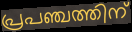
പ്രപഞ്ചത്തിന്